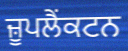
ਜ਼ੂਪਲੈਂਕਟਨ